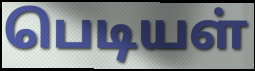
பெடியள்